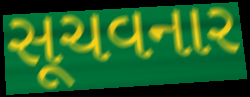
સૂચવનાર